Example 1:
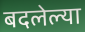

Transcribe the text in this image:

बदलेल्या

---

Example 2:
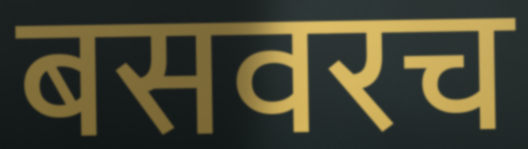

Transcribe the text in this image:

बसवरच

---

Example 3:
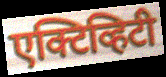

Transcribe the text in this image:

एक्टिव्हिटी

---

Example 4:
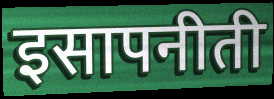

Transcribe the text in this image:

इसापनीती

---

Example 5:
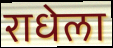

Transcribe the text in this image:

राधेला